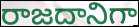
రాజదానిగా